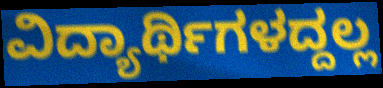
ವಿದ್ಯಾರ್ಥಿಗಳದ್ದಲ್ಲ